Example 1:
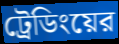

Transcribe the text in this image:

ট্রেডিংয়ের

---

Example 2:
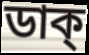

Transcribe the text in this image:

ডাক্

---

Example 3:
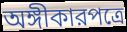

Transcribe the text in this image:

অঙ্গীকারপত্রে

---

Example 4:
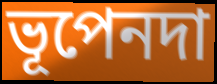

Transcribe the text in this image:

ভূপেনদা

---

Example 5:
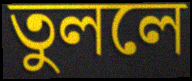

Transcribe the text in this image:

তুললে